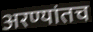
अरण्यांतच